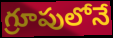
గ్రూపులోనే